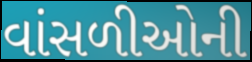
વાંસળીઓની